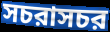
সচরাসচর